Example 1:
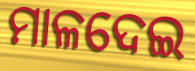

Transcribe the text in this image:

ମାଳଦେଇ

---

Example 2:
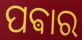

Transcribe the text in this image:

ପଵାର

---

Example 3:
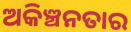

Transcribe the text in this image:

ଅକିଞ୍ଚନତାର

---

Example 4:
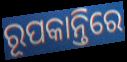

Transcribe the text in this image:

ରୂପକାନ୍ତିରେ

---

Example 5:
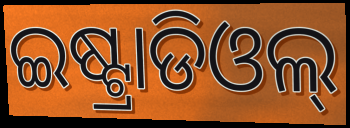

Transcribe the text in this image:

ଇଷ୍ଟ୍ରାଡିଓଲ୍